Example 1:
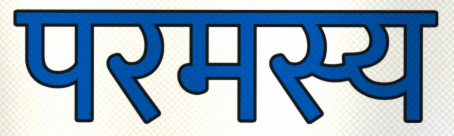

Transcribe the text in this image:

परमस्य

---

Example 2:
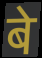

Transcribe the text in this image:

बे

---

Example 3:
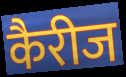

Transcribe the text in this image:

कैरीज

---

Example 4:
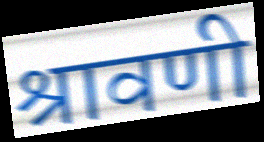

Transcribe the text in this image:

श्रावणी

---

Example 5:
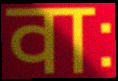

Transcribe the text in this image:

वाः